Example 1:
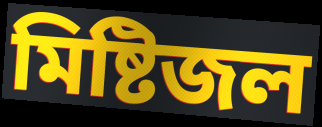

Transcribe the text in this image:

মিষ্টিজল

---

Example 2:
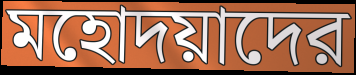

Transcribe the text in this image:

মহোদয়াদের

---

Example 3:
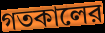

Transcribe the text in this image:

গতকালের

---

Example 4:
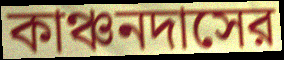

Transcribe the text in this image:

কাঞ্চনদাসের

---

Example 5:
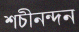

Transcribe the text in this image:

শচীনন্দন